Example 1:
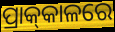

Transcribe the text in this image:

ପ୍ରାକ୍‌କାଳରେ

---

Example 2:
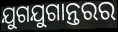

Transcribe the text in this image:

ଯୁଗଯୁଗାନ୍ତରର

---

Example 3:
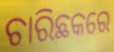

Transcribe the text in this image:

ଚାରିଛକରେ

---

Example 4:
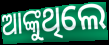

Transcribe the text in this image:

ଆଙ୍କୁଥିଲେ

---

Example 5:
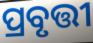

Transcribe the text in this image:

ପ୍ରବୃତ୍ତୀ